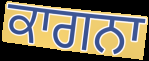
ਕਾਗਨਾ